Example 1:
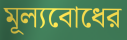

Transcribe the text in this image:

মূল্যবোধের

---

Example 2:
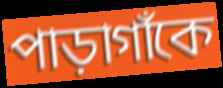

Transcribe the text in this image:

পাড়াগাঁকে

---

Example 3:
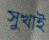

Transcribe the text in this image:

সুখাই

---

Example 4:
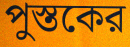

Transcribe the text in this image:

পুস্তকের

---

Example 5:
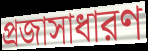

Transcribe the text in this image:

প্রজাসাধারণ